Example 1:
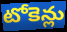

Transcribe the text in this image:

టోకెన్లు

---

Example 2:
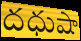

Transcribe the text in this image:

దధుషా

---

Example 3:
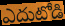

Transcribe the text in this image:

ఎదుటోడి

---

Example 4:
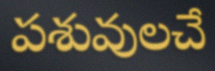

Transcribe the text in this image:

పశువులచే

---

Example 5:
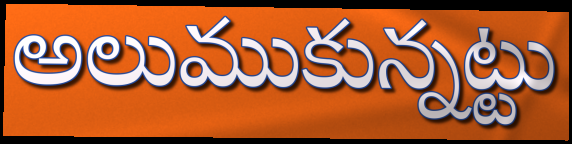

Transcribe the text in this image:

అలుముకున్నట్టు